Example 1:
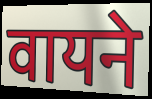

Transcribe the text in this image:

वायने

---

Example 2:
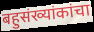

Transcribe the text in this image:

बहुसंख्यांकांचा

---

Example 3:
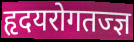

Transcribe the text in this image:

हृदयरोगतज्ज्ञ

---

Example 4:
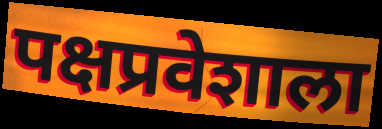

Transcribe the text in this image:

पक्षप्रवेशाला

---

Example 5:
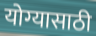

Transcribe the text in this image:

योग्यासाठी